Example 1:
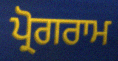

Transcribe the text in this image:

ਪ੍ਰ੍ਰੋਗਰਾਮ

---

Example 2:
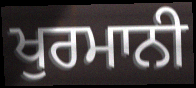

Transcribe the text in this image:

ਖੁਰਮਾਨੀ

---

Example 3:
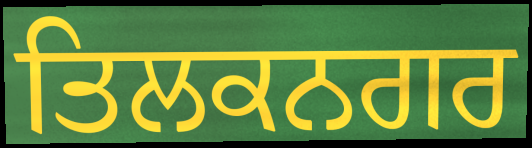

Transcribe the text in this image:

ਤਿਲਕਨਗਰ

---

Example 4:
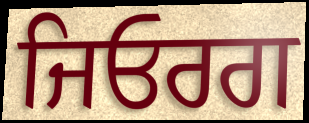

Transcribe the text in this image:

ਜਿਓਰਗ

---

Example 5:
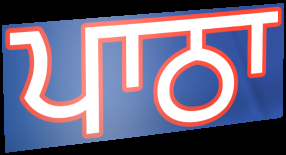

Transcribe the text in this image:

ਪਾਠਾ